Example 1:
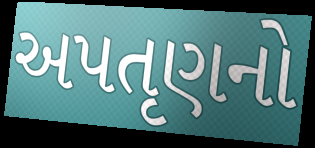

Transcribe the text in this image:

અપતૃણનો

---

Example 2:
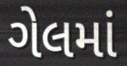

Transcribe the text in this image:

ગેલમાં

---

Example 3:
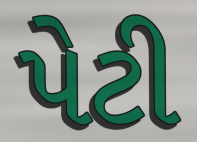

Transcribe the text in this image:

પેટી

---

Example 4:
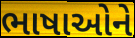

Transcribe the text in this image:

ભાષાઓને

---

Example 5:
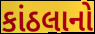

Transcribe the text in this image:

કાંઠલાનો